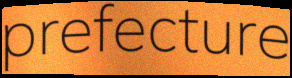
prefecture